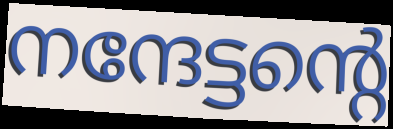
നന്ദേട്ടന്റെ